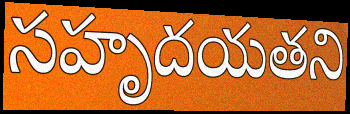
సహృదయతని